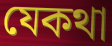
যেকথা